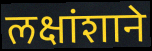
लक्षांशाने